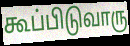
கூப்பிடுவாரு